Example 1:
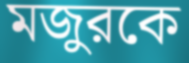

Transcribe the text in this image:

মজুরকে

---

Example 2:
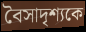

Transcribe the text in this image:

বৈসাদৃশ্যকে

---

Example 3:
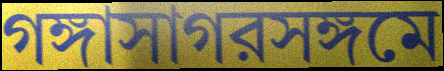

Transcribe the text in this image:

গঙ্গাসাগরসঙ্গমে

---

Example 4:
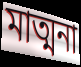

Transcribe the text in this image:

মাত্মনা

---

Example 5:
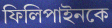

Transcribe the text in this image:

ফিলিপাইনকে